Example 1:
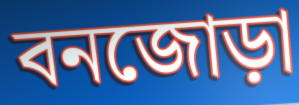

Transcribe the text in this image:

বনজোড়া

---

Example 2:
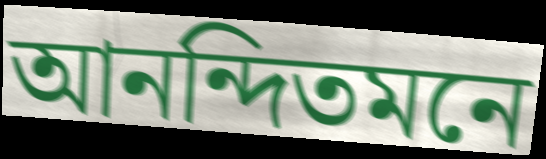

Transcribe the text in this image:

আনন্দিতমনে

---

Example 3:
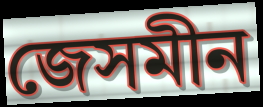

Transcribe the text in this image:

জেসমীন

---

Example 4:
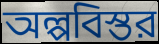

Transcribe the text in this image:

অল্পবিস্তর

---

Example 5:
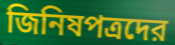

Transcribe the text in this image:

জিনিষপত্রদের